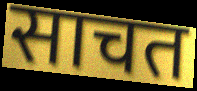
साचत